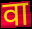
वा